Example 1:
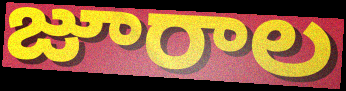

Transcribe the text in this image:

జూరాల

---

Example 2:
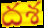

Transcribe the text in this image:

దశ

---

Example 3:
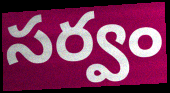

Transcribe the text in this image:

సర్వం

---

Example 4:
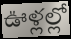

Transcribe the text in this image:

ఊళ్లల్లో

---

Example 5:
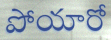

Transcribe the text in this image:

పోయారో